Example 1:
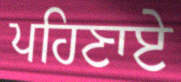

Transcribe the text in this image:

ਪਹਿਣਾਏ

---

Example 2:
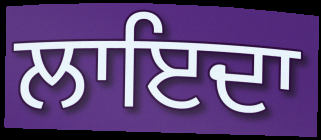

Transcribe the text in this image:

ਲਾਇਦਾ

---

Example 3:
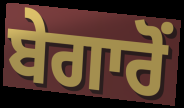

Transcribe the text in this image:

ਬੇਗਾਰੋਂ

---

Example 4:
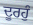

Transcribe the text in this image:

ਦੂਰਹੁੰ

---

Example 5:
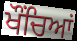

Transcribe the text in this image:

ਖੌਂਚਿਆਂ